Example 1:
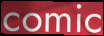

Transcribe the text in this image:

comic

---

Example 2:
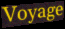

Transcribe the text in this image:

Voyage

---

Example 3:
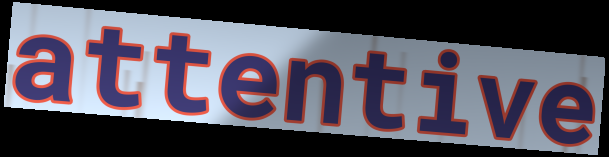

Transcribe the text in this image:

attentive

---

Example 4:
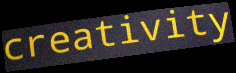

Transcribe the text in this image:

creativity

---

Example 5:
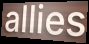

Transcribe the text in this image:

allies